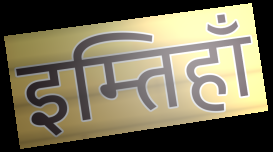
इम्तिहाँ